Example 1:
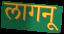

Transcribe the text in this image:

लागनू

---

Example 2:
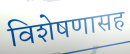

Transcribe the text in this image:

विशेषणासह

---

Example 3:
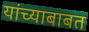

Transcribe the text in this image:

यांच्याबाबत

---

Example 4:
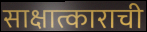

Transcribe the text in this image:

साक्षात्काराची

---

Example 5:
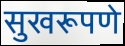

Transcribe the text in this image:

सुखरूपणे